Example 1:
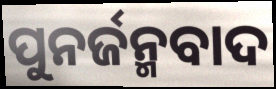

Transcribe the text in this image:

ପୁନର୍ଜନ୍ମବାଦ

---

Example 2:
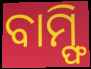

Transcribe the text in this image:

ବାମ୍ଫି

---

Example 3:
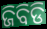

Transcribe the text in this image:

ଜିବିଡି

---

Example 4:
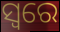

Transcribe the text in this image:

ସ୍ବରେ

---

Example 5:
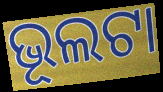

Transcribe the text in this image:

ଭୂଲଟା